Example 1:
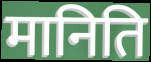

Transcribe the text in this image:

मानिति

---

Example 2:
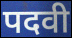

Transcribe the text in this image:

पदवी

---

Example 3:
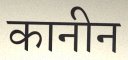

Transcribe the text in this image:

कानीन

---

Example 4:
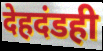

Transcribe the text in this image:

देहदंडही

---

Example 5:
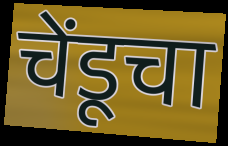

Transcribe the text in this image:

चेंडूचा